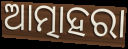
ଆତ୍ମାହରା